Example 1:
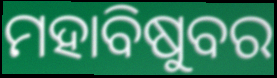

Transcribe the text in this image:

ମହାବିଷୁବର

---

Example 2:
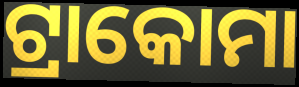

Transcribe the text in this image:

ଟ୍ରାକୋମା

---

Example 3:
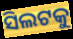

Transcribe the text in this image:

ସିଲଟକୁ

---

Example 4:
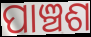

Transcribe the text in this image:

ପାଞ୍ଚଶ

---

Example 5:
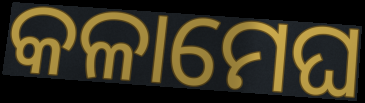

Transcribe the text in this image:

କଳାମେଘ